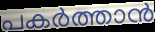
പകർത്താൻ